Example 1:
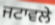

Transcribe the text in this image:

ਜਟਾਵਲੇ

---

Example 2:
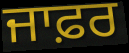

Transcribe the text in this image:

ਜਾਫ਼ਰ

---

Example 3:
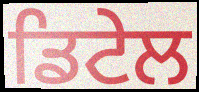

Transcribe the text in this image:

ਡਿਟੇਲ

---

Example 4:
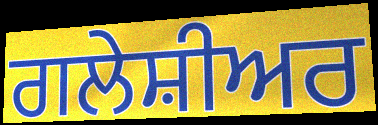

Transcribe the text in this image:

ਗਲੇਸ਼ੀਅਰ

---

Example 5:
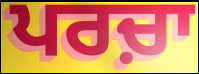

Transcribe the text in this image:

ਪਰਚ਼ਾ